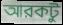
আরকটু